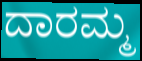
ದಾರಮ್ಮ